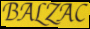
BALZAC